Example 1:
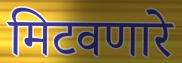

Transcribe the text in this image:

मिटवणारे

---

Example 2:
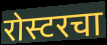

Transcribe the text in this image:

रोस्टरचा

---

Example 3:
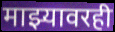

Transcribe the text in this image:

माझ्यावरही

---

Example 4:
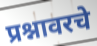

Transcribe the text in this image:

प्रश्नावरचे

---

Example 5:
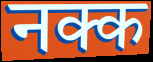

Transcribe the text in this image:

नक्क